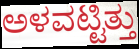
ಅಳವಟ್ಟಿತ್ತು